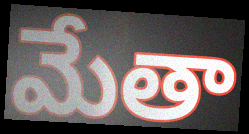
మేతా